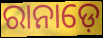
ରାନାଡ଼େ